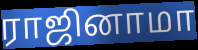
ராஜினாமா